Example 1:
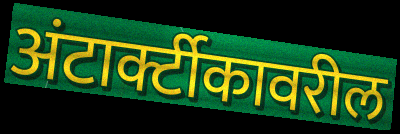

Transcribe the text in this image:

अंटार्क्टीकावरील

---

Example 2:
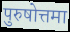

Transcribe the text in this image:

पुरुषोत्तमा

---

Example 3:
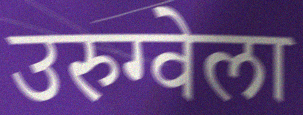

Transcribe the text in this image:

उरुग्वेला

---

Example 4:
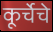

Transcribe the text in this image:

कूर्चेचे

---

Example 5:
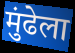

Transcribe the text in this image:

मुंढेला